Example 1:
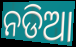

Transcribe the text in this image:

ନଡିଆ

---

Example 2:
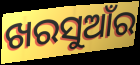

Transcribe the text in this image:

ଖରସୁଆଁର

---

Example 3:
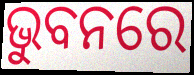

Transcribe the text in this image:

ଭୁବନରେ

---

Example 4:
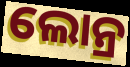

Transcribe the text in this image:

ଲୋନ୍ର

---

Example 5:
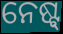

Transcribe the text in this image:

ନେଷ୍ଟ୍